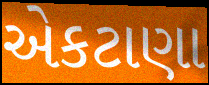
એકટાણા